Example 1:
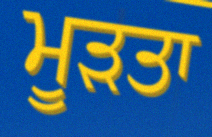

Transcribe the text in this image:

ਮੂੜਤਾ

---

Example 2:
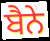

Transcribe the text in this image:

ਬੈਨੇ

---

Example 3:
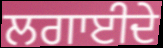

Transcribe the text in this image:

ਲਗਾਈਦੇ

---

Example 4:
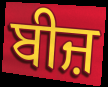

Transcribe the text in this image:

ਬੀਜ਼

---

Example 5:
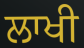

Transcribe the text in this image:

ਲਾਖੀ